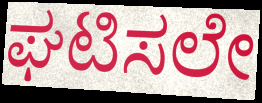
ಘಟಿಸಲೇ